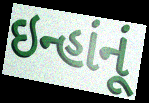
ઇન્હાંનૂં